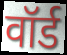
वॉर्ड